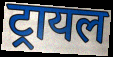
ट्रायल